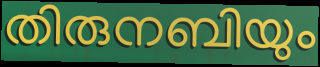
തിരുനബിയും